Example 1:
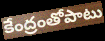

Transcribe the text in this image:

కేంద్రంతోపాటు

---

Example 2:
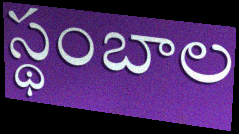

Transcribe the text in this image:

స్థంబాల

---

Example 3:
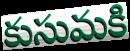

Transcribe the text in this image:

కుసుమకి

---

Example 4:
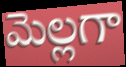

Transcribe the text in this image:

మెల్లగా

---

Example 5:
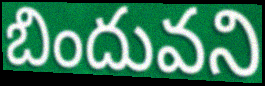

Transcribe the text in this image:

బిందువని